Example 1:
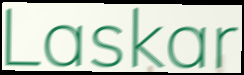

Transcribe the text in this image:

Laskar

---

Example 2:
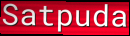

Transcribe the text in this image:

Satpuda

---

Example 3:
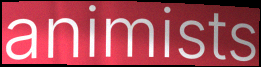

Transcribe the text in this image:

animists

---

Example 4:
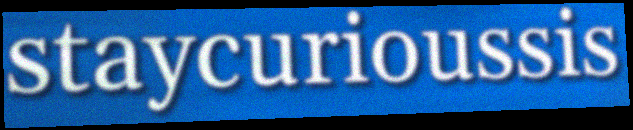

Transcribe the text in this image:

staycurioussis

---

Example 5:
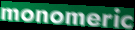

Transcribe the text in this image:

monomeric